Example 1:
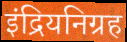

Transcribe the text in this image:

इंद्रियनिग्रह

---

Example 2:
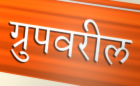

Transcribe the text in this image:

ग्रुपवरील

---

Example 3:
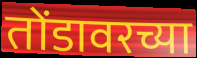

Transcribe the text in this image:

तोंडावरच्या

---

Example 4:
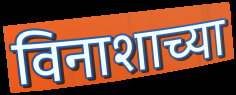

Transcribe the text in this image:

विनाशाच्या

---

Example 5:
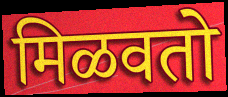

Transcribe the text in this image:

मिळवतो